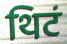
थिटं